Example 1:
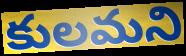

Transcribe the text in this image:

కులమని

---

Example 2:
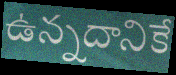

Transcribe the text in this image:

ఉన్నదానికే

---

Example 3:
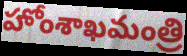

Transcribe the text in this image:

హోంశాఖమంత్రి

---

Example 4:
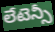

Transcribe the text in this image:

లేటెన్సీ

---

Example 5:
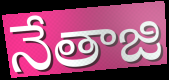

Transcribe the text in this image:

నేతాజి